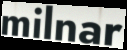
milnar